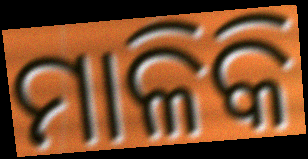
ମାଳିକି